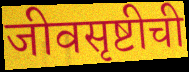
जीवसृष्टीची